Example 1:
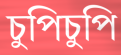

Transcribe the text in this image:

চুপিচুপি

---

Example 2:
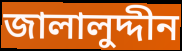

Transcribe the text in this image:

জালালুদ্দীন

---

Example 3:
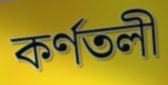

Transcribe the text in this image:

কর্ণতলী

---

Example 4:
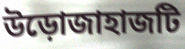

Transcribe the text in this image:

উড়োজাহাজটি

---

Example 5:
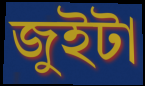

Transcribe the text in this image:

জুইটা